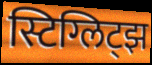
स्टिग्लिट्झ